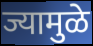
ज्यामुळे